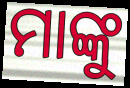
ମାଙ୍କୁ